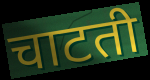
चाटती